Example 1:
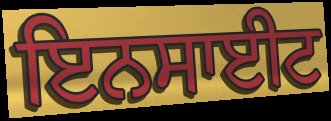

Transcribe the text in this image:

ਇਨਸਾਈਟ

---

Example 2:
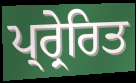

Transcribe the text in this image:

ਪ੍ਰ੍ਰੇਰਿਤ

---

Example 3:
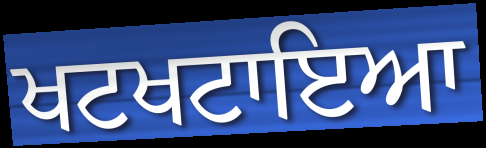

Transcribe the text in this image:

ਖਟਖਟਾਇਆ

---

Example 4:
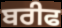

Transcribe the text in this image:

ਬਰੀਫ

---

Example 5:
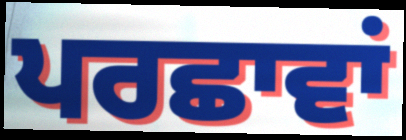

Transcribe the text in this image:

ਪਰਛਾਵਾਂ